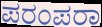
ಪರಂಪರಾ